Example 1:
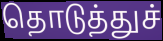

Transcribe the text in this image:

தொடுத்துச்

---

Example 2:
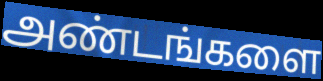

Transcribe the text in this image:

அண்டங்களை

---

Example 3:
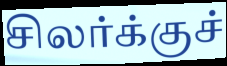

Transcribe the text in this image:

சிலர்க்குச்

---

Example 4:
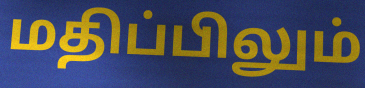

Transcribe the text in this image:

மதிப்பிலும்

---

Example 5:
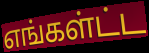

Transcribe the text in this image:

எங்கள்ட்ட